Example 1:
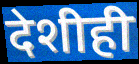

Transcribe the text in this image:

देशीही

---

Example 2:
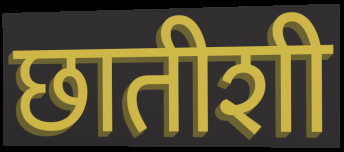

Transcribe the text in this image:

छातीशी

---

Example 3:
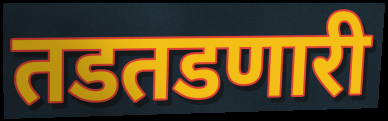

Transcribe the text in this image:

तडतडणारी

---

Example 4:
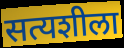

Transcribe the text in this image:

सत्यशीला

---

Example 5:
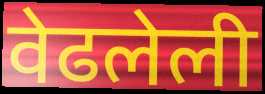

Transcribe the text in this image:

वेढलेली